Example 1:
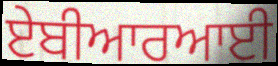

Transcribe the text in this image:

ਏਬੀਆਰਆਈ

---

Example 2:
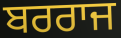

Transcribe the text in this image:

ਬਰਰਾਜ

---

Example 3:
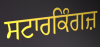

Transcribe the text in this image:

ਸਟਾਰਕਿੰਗਜ਼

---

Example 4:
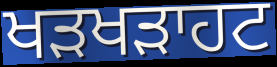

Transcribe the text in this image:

ਖੜਖੜਾਹਟ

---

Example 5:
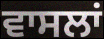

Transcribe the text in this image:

ਵਾਸਲਾਂ